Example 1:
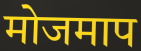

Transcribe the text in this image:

मोजमाप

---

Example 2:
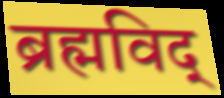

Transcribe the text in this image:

ब्रह्मविद्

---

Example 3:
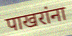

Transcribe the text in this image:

पाखरांना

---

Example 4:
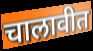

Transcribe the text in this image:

चालावीत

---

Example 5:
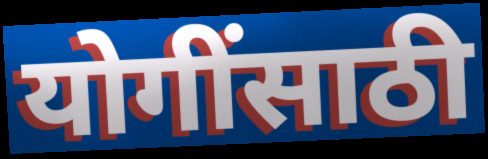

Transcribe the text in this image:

योगींसाठी